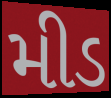
મીડ